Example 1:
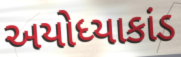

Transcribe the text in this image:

અયોધ્યાકાંડ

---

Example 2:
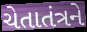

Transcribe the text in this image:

ચેતાતંત્રને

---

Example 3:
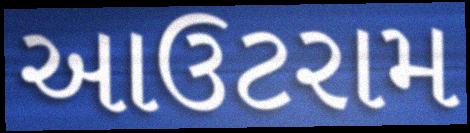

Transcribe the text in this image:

આઉટરામ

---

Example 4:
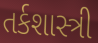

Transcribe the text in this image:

તર્કશાસ્ત્રી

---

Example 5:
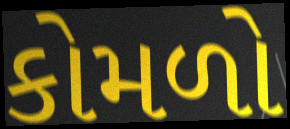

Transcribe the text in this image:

કોમળો